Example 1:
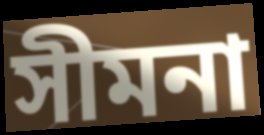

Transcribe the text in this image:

সীমনা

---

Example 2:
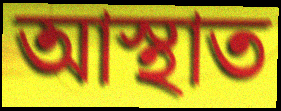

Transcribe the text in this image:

আস্থাত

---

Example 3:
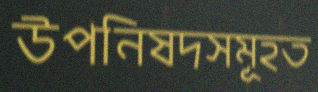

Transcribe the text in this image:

উপনিষদসমূহত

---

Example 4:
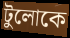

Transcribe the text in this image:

টুলোকে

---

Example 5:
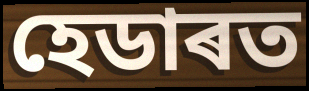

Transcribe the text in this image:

হেডাৰত